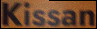
Kissan